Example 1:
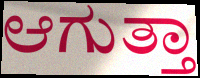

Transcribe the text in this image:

ಆಗುತ್ತಾ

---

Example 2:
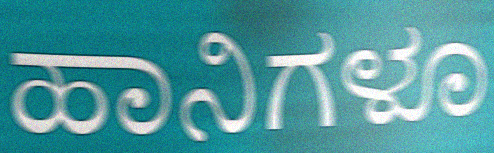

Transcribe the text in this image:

ಹಾನಿಗಳೂ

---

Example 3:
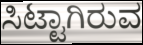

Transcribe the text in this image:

ಸಿಟ್ಟಾಗಿರುವ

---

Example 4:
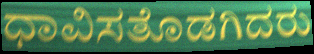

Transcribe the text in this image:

ಧಾವಿಸತೊಡಗಿದರು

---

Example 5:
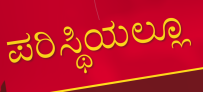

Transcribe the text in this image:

ಪರಿಸ್ಥಿಯಲ್ಲೂ